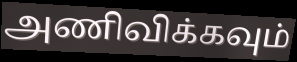
அணிவிக்கவும்